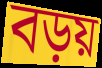
বড়য়